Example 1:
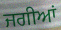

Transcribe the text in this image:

ਜਗੀਆਂ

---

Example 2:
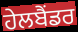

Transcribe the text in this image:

ਹੇਲਬੈਂਡਰ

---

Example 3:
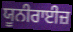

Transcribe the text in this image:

ਯੂਨੀਰਾਈਜ਼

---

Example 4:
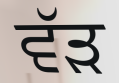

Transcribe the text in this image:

ਵੱੜ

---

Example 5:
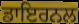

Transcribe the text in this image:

ਡਾਇਰਨਲ